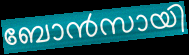
ബോൻസായി